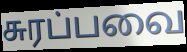
சுரப்பவை